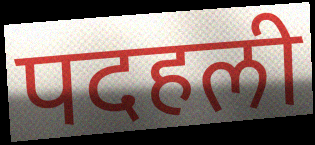
पदहली